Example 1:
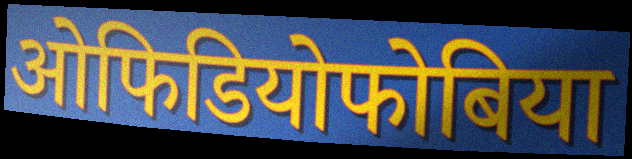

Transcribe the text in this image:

ओफिडियोफोबिया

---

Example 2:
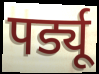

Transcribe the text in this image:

पर्ड्यू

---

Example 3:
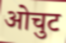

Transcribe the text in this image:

ओचुट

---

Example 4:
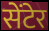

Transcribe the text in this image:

सेंटेर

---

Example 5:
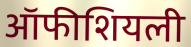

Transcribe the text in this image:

ऑफीशियली